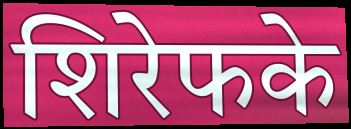
शिरेफके